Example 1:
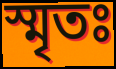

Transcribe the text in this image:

স্মৃতঃ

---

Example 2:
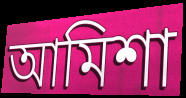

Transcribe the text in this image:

আমিশা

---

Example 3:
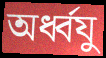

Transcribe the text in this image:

অর্ধ্বযু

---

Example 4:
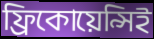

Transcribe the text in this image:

ফ্রিকোয়েন্সিই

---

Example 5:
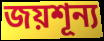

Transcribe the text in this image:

জয়শূন্য